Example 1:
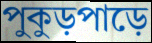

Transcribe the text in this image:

পুকুড়পাড়ে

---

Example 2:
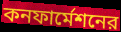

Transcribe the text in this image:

কনফার্মেশনের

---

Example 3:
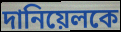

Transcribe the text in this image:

দানিয়েলকে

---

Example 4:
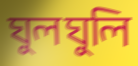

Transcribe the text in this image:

ঘুলঘুলি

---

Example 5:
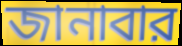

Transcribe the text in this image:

জানাবার